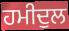
ਹਮੀਦੁਲ